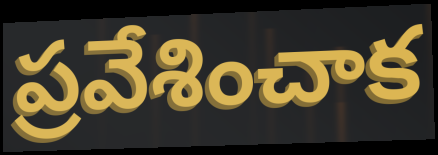
ప్రవేశించాక